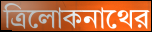
ত্রিলোকনাথের